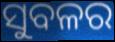
ସୁବଳର